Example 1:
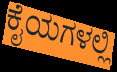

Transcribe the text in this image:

ಕೈಯಗಳಲ್ಲಿ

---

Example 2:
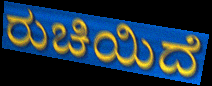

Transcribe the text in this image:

ರುಚಿಯಿದೆ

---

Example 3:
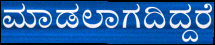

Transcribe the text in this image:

ಮಾಡಲಾಗದಿದ್ದರೆ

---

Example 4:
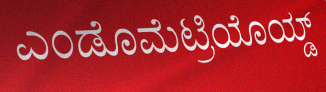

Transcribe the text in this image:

ಎಂಡೊಮೆಟ್ರಿಯೊಯ್ಡ್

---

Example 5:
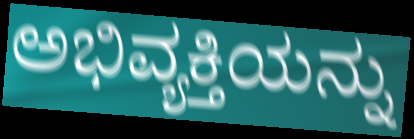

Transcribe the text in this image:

ಅಭಿವ್ಯಕ್ತಿಯನ್ನು